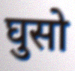
घुसो